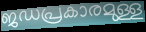
ജഡപ്രകാരമുള്ള